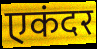
एकंदर